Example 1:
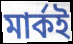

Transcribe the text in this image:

মার্কই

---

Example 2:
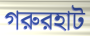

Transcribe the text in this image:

গরুরহাট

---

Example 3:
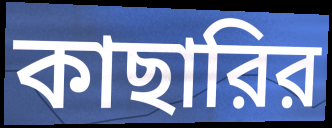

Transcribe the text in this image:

কাছারির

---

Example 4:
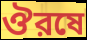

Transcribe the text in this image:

ঔরষে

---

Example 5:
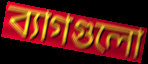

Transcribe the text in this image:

ব্যাগগুলো